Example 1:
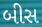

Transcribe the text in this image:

બીસ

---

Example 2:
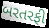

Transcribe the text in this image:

બરતરફી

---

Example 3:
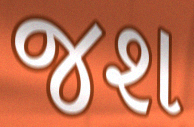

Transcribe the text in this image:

જશ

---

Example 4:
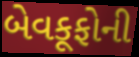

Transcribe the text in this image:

બેવકૂફોની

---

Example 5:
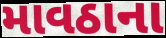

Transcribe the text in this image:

માવઠાના